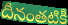
దీనంతటికీ